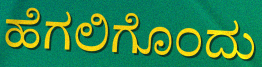
ಹೆಗಲಿಗೊಂದು